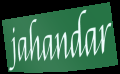
jahandar